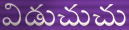
విడుచుచు